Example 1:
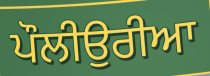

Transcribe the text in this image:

ਪੌਲੀਉਰੀਆ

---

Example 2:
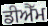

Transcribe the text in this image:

ਡੀਐੱਮ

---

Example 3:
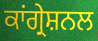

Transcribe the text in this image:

ਕਾਂਗ੍ਰੇਸ਼ਨਲ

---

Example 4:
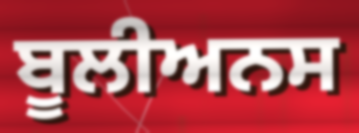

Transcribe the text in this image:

ਬੂਲੀਅਨਸ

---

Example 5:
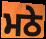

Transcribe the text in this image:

ਮਠੇ